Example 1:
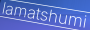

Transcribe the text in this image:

lamatshumi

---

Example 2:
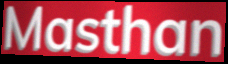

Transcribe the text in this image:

Masthan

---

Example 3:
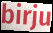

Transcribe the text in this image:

birju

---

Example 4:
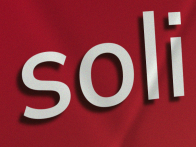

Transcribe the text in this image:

soli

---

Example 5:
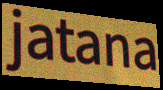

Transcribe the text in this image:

jatana